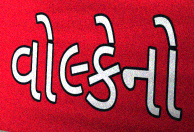
વોલ્કેનો